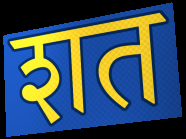
शत